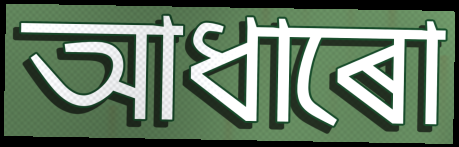
আধাৰো